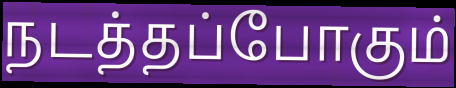
நடத்தப்போகும்